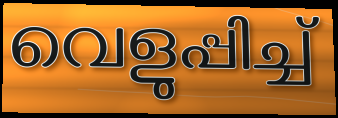
വെളുപ്പിച്ച്